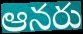
ఆనరు